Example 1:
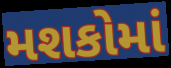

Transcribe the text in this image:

મશકોમાં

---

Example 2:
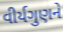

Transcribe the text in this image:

વીર્યગુણને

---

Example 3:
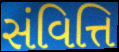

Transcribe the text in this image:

સંવિત્તિ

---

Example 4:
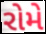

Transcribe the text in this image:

રોમે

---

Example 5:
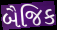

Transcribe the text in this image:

બૈજિક